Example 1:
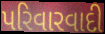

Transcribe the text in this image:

પરિવારવાદી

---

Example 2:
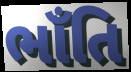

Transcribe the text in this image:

ભાઁતિ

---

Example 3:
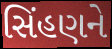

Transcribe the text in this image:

સિંહણને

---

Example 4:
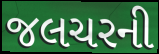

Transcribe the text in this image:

જલચરની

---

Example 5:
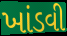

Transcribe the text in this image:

ખાંડવી